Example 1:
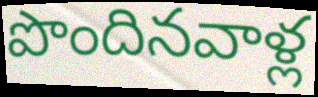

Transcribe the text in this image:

పొందినవాళ్ల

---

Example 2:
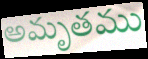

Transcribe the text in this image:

అమృతము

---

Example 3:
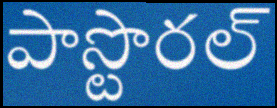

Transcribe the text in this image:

పాస్టొరల్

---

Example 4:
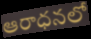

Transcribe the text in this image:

ఆరాధనలో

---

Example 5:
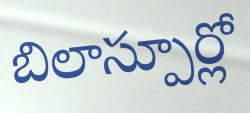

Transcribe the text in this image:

బిలాస్పూర్లో